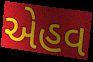
એહવ